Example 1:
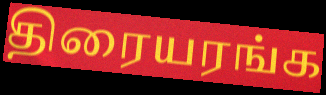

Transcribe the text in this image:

திரையரங்க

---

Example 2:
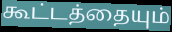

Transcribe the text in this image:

கூட்டத்தையும்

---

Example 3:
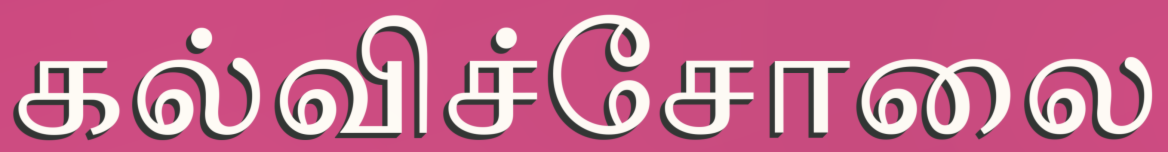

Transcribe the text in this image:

கல்விச்சோலை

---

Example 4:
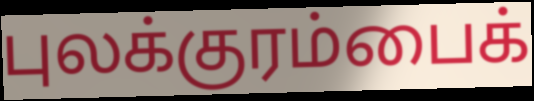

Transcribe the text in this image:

புலக்குரம்பைக்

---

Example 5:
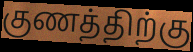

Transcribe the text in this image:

குணத்திற்கு